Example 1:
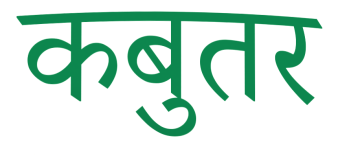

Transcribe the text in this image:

कबुतर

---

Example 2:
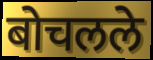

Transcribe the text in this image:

बोचलले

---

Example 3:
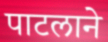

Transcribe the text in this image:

पाटलाने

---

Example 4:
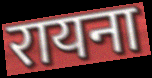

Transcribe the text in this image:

रायना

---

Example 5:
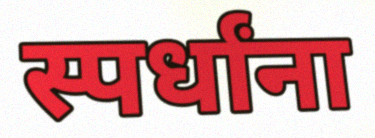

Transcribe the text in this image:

स्पर्धांना